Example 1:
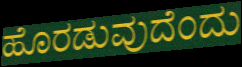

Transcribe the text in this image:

ಹೊರಡುವುದೆಂದು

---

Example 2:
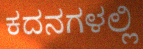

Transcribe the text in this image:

ಕದನಗಳಲ್ಲಿ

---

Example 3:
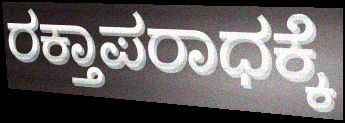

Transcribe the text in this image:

ರಕ್ತಾಪರಾಧಕ್ಕೆ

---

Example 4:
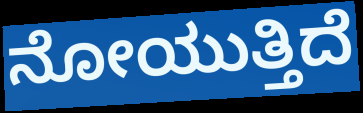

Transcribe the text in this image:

ನೋಯುತ್ತಿದೆ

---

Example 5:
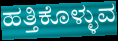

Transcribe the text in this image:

ಹತ್ತಿಕೊಳ್ಳುವ